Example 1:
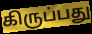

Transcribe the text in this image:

கிருப்பது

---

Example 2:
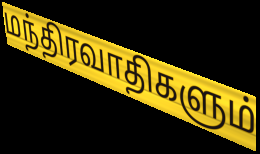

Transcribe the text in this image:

மந்திரவாதிகளும்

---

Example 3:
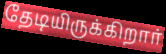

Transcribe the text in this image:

தேடியிருக்கிறார்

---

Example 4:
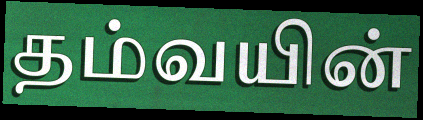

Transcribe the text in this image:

தம்வயின்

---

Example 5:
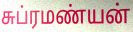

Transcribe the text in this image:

சுப்ரமண்யன்